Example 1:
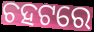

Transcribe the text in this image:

ଚହଟରେ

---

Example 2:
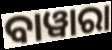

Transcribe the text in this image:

ବାୱାରା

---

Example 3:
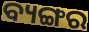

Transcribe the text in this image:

ବ୍ୟଙ୍ଗର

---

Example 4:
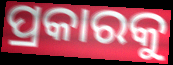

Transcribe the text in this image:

ପ୍ରକାରକୁ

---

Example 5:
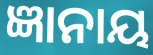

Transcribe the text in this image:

ଜ୍ଞାନାୟ